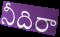
నీదిరా